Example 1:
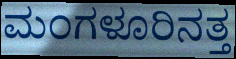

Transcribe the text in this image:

ಮಂಗಳೂರಿನತ್ತ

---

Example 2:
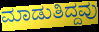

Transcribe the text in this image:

ಮಾಡುತಿದ್ದವು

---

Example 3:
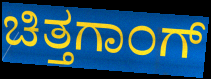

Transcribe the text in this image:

ಚಿತ್ತಗಾಂಗ್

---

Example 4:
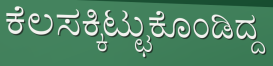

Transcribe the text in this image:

ಕೆಲಸಕ್ಕಿಟ್ಟುಕೊಂಡಿದ್ದ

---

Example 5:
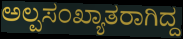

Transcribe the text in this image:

ಅಲ್ಪಸಂಖ್ಯಾತರಾಗಿದ್ದ